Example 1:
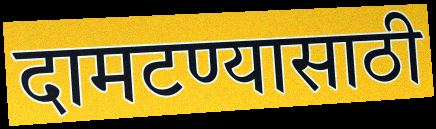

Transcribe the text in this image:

दामटण्यासाठी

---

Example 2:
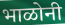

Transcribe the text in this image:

भाळोनी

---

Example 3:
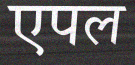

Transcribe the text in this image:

एपल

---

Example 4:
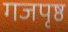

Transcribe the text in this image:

गजपृष्ठ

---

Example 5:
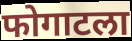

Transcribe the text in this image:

फोगाटला